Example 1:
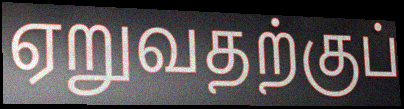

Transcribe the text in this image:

ஏறுவதற்குப்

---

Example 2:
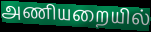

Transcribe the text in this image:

அணியறையில்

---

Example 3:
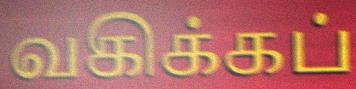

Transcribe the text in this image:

வகிக்கப்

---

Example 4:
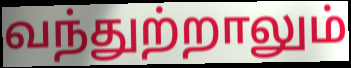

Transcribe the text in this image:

வந்துற்றாலும்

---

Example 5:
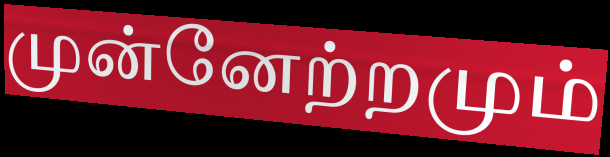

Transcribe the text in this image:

முன்னேற்றமும்